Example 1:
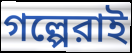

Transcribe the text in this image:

গল্পেরাই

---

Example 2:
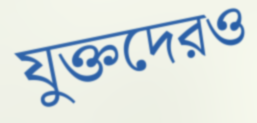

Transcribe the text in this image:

যুক্তদেরও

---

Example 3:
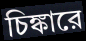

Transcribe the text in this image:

চিঙ্কারে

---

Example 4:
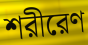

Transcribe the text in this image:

শরীরেণ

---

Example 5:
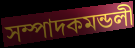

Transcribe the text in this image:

সম্পাদকমন্ডলী